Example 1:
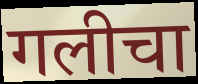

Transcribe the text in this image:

गलीचा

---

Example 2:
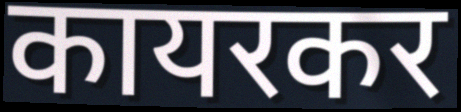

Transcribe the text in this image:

कायरकर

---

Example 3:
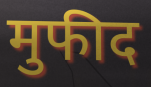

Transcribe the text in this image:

मुफीद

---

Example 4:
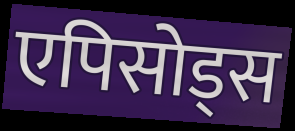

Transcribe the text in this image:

एपिसोड्स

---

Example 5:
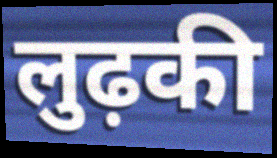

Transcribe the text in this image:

लुढ़की